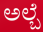
ಅಲ್ಬೆ